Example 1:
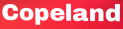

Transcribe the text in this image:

Copeland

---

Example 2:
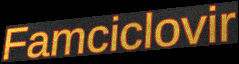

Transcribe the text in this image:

Famciclovir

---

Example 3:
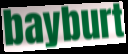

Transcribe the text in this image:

bayburt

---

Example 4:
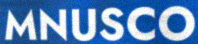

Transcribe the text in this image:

MNUSCO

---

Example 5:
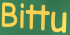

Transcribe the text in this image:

Bittu